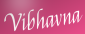
Vibhavna